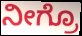
ನೀಗ್ರೊ